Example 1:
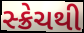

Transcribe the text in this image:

સ્ક્રેચથી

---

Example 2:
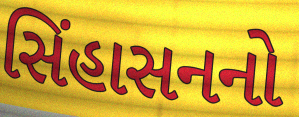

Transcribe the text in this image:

સિંહાસનનો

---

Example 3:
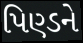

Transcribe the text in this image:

પિણ્ડને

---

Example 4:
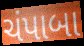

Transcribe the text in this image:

ચંપાબા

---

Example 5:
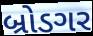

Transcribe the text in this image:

બ્રોડગર